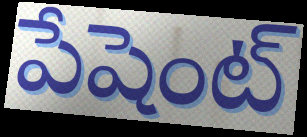
పేషెంట్